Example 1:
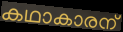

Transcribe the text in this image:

കഥാകാരന്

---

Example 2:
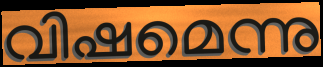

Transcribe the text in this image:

വിഷമെന്നു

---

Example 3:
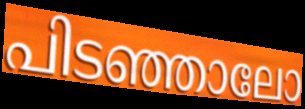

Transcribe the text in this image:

പിടഞ്ഞാലോ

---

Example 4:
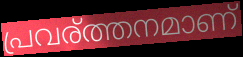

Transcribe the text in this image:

പ്രവര്ത്തനമാണ്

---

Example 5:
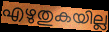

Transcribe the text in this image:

എഴുതുകയില്ല